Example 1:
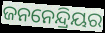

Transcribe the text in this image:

ଜନନେନ୍ଦ୍ରିୟର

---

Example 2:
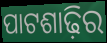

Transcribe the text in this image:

ପାଟଶାଢ଼ିର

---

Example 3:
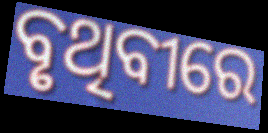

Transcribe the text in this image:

ବୃଥିବୀରେ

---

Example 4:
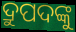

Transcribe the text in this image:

ଦ୍ରୁପଦଙ୍କୁ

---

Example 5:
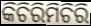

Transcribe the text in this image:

କିଚିରିମିଚିରି